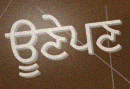
ਊਣੇਪਣ